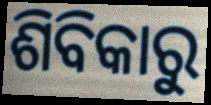
ଶିବିକାରୁ